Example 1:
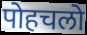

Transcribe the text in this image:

पोहचलो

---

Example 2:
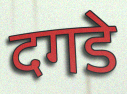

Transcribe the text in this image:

दगडे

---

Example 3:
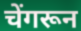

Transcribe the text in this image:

चेंगरून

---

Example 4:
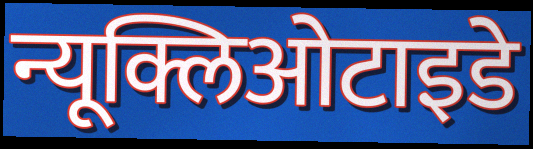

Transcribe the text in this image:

न्यूक्लिओटाइडे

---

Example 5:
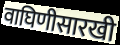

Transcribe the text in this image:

वाघिणीसारखी